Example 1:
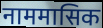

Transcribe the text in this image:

नाममासिक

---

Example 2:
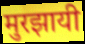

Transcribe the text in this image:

मुरझायी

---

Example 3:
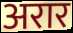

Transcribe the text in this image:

अरार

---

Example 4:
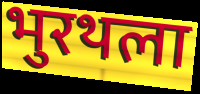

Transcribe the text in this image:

भुरथला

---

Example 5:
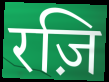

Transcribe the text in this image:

रज़ि